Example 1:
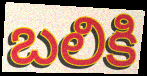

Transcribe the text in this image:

బలికి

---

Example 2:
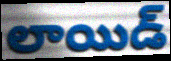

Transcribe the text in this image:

లాయిడ్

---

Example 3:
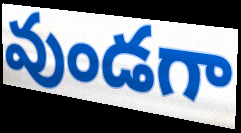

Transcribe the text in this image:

వుండగా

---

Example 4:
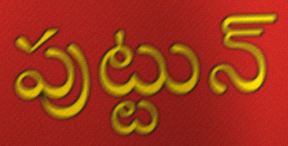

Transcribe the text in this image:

పుట్టున్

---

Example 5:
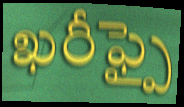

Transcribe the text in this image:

ఖరీఫ్పై